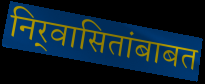
निर्वासितांबाबत